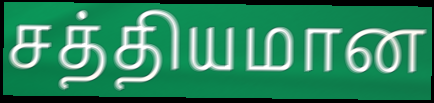
சத்தியமான